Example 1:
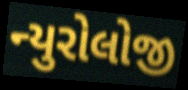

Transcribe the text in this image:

ન્યુરોલોજી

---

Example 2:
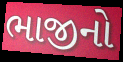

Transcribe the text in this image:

ભાજીનો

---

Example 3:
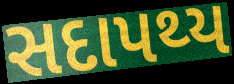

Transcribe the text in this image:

સદાપથ્ય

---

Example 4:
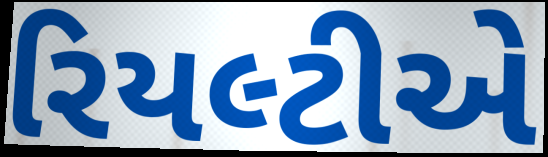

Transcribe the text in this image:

રિયલ્ટીએ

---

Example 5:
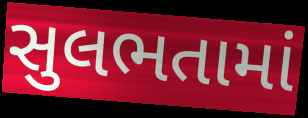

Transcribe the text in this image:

સુલભતામાં